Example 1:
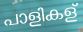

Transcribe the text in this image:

പാളികള്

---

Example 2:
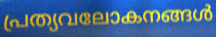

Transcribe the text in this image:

പ്രത്യവലോകനങ്ങൾ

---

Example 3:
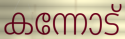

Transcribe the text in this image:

കന്നോട്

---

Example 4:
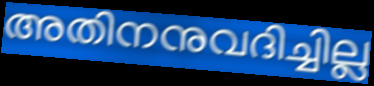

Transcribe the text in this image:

അതിനനുവദിച്ചില്ല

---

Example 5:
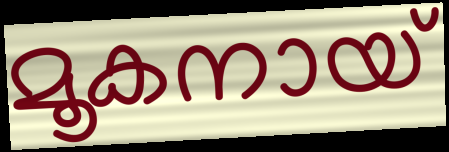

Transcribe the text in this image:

മൂകനായ്